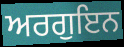
ਅਰਗੁਇਨ